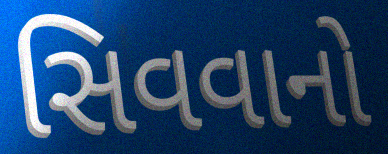
સિવવાનો